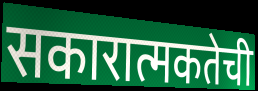
सकारात्मकतेची